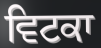
ਵਿਟਕਾ